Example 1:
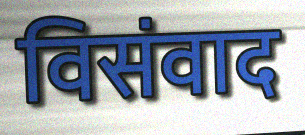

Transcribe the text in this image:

विसंवाद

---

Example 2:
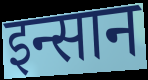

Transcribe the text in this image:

इन्सान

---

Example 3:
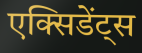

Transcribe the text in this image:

एक्सिडेंट्स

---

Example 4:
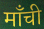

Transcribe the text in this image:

माँची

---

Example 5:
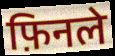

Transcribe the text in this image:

फ़िनले